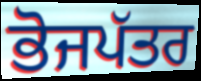
ਭੋਜਪੱਤਰ